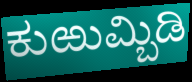
ಕುಱುಮ್ಬಿಡಿ